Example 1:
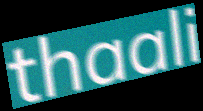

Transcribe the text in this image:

thaali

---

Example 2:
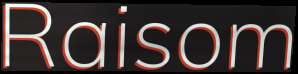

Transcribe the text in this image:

Raisom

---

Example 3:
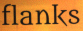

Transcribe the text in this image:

flanks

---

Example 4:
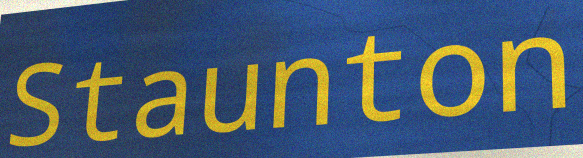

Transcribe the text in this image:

Staunton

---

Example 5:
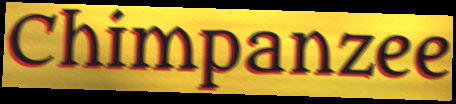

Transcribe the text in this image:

Chimpanzee